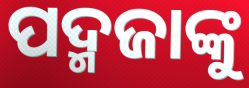
ପଦ୍ମଜାଙ୍କୁ